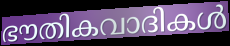
ഭൗതികവാദികൾ